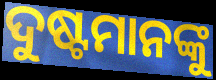
ଦୁଷ୍ଟମାନଙ୍କୁ